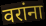
वरांना